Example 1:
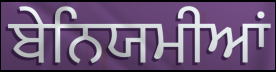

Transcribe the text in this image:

ਬੇਨਿਯਮੀਆਂ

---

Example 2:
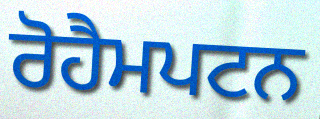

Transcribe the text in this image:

ਰੋਹੈਮਪਟਨ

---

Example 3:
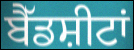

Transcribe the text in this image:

ਬੈੱਡਸ਼ੀਟਾਂ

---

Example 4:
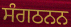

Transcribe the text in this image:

ਸੰਗਠਨਨ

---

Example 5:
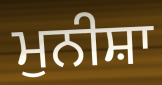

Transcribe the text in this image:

ਮੁਨੀਸ਼ਾ